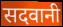
सदवानी